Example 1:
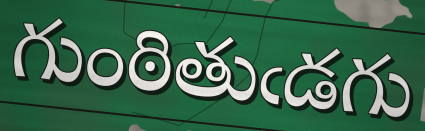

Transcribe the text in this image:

గుంఠితుఁడగు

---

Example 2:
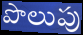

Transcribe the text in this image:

పొలుపు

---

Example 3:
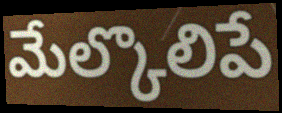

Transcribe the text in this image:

మేల్కొలిపే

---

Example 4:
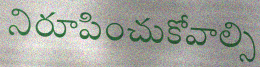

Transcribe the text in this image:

నిరూపించుకోవాల్సి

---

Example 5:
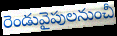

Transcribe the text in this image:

రెండువైపులనుంచీ